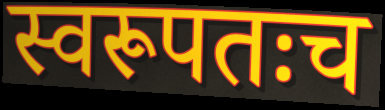
स्वरूपतःच